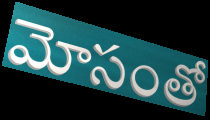
మోసంతో